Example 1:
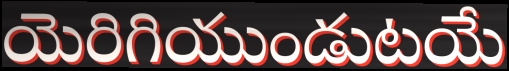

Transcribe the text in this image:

యెరిగియుండుటయే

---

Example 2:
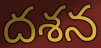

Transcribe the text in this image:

దశన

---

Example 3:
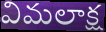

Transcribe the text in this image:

విమలాక్ష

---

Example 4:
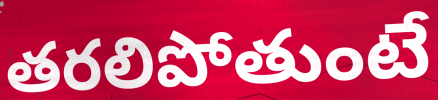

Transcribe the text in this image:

తరలిపోతుంటే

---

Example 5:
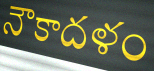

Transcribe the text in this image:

నౌకాదళం